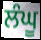
ਲੰਘੂ